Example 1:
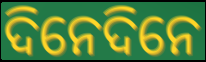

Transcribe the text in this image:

ଦିନେଦିନେ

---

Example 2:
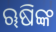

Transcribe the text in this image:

ୠଷିଙ୍କ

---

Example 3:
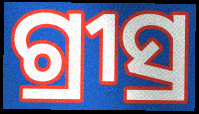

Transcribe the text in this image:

ଗ୍ରୀସ୍ର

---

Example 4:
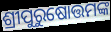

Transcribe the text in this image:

ଶ୍ରୀପୁରୁଷୋତ୍ତମଙ୍କ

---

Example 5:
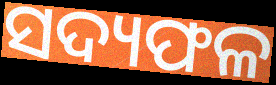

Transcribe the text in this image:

ସଦ୍ୟଫଳ